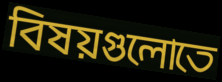
বিষয়গুলোতে